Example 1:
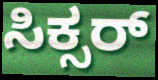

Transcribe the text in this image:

ಸಿಕ್ಸರ್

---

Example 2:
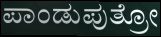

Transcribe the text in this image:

ಪಾಂಡುಪುತ್ರೋ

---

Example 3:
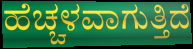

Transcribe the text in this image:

ಹೆಚ್ಚಳವಾಗುತ್ತಿದೆ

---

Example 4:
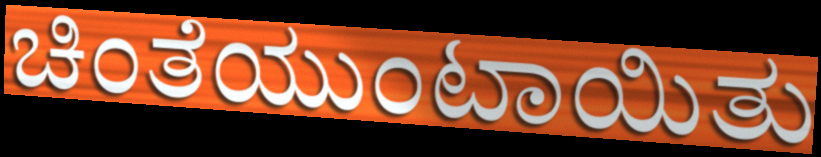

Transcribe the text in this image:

ಚಿಂತೆಯುಂಟಾಯಿತು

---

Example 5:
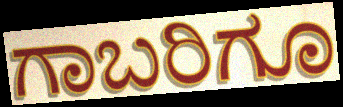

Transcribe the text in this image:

ಗಾಬರಿಗೂ